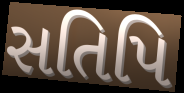
સતિપિ